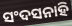
ସଂଦସନାହି